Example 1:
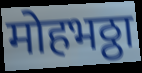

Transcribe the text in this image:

मोहभठ्ठा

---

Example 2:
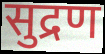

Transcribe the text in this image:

सुद्रण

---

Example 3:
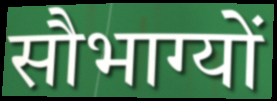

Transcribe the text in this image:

सौभाग्यों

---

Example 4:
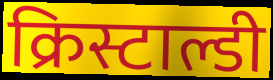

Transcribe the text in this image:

क्रिस्टाल्डी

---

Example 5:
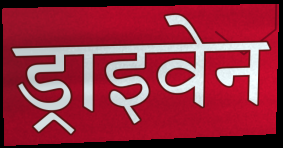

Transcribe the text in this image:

ड्राइवेन